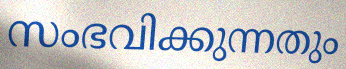
സംഭവിക്കുന്നതും